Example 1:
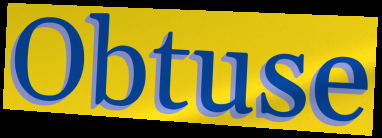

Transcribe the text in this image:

Obtuse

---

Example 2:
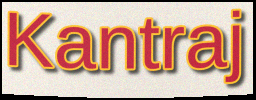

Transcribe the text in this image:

Kantraj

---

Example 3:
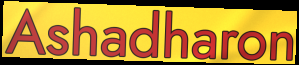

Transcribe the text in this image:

Ashadharon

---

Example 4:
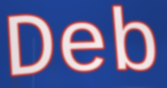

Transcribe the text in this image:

Deb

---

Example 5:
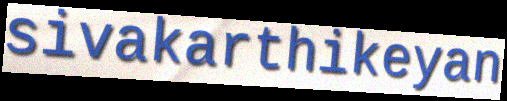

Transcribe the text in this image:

sivakarthikeyan